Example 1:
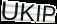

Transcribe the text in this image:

UKIP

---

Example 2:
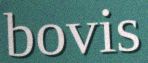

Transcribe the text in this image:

bovis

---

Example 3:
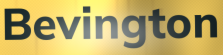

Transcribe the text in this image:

Bevington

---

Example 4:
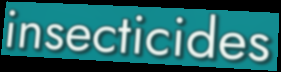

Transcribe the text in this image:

insecticides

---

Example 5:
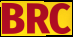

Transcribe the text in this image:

BRC